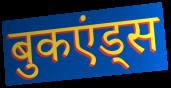
बुकएंड्स